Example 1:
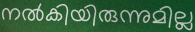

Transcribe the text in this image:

നൽകിയിരുന്നുമില്ല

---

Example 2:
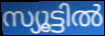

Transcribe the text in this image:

സ്യൂട്ടിൽ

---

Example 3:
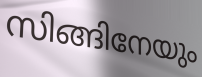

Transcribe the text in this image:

സിങ്ങിനേയും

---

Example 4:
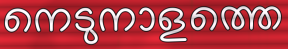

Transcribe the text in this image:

നെടുനാളത്തെ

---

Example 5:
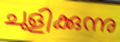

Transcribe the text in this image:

ചുളിക്കുന്നു